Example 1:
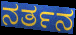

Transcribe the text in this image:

ನರ್ತನ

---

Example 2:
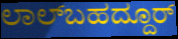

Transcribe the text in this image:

ಲಾಲ್‌ಬಹದ್ದೂರ್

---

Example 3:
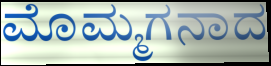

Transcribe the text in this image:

ಮೊಮ್ಮಗನಾದ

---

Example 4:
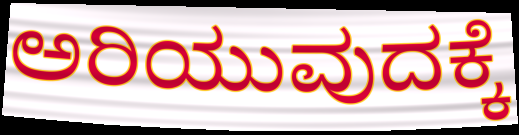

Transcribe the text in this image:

ಅರಿಯುವುದಕ್ಕೆ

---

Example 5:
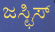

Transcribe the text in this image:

ಜಸ್ಟಿಸ್